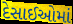
દેસાઈઓમાં